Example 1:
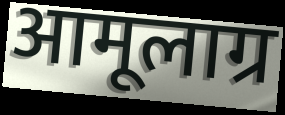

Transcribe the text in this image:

आमूलाग्र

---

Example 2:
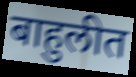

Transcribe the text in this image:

बाहुलीत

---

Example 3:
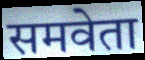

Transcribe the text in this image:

समवेता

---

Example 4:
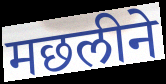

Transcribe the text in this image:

मछलीने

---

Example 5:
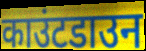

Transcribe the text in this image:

काउंटडाउन